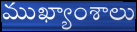
ముఖ్యాంశాలు